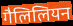
गैलिलियन